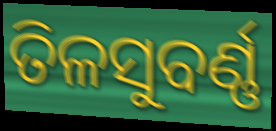
ତିଳସୁବର୍ଣ୍ଣ